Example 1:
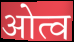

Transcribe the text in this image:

ओत्व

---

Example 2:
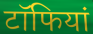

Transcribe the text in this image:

टॉफियां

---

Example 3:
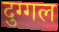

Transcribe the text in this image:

दुग्गल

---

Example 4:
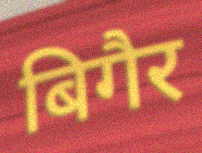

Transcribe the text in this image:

बिगैर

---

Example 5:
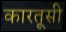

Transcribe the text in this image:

कारतूसी